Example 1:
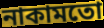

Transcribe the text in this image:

নাকামতো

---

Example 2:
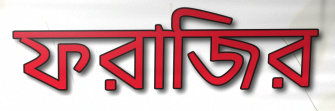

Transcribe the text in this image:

ফরাজির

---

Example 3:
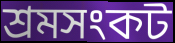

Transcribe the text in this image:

শ্রমসংকট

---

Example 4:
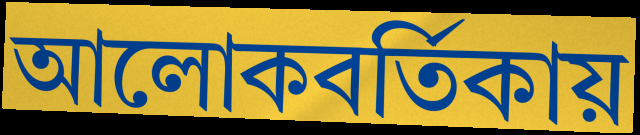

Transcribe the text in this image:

আলোকবর্তিকায়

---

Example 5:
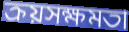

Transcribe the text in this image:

ক্রয়সক্ষমতা